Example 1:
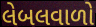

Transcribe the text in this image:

લેબલવાળો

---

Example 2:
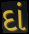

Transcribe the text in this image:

દાં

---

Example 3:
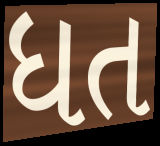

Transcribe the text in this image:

ધત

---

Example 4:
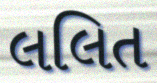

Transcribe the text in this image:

લલિત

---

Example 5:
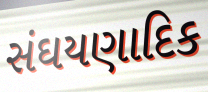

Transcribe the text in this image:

સંઘયણાદિક